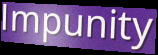
Impunity